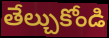
తేల్చుకోండి